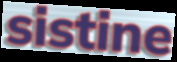
sistine